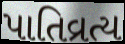
પાતિવ્રત્ય